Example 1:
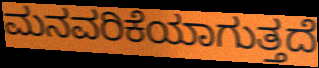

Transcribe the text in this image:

ಮನವರಿಕೆಯಾಗುತ್ತದೆ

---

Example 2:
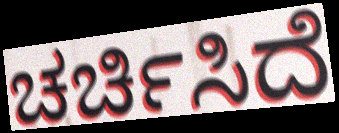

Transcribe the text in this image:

ಚರ್ಚಿಸಿದೆ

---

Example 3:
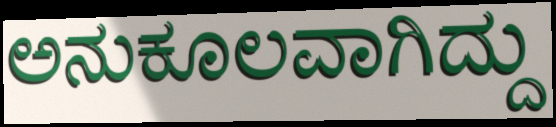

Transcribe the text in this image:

ಅನುಕೂಲವಾಗಿದ್ದು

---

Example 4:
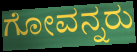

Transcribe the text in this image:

ಗೋವನ್ನರು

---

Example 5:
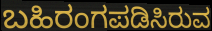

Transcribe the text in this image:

ಬಹಿರಂಗಪಡಿಸಿರುವ